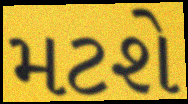
મટશે